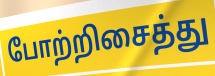
போற்றிசைத்து